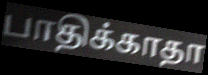
பாதிக்காதா